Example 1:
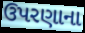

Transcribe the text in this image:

ઉપરણાના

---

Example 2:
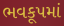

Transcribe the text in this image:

ભવકૂપમાં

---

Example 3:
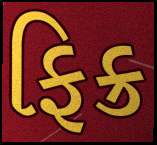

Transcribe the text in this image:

ફિક્ર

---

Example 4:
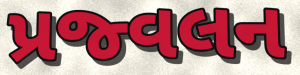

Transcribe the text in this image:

પ્રજ્વલન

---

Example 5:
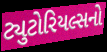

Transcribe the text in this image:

ટ્યુટોરિયલ્સનો